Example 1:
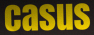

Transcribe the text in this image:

casus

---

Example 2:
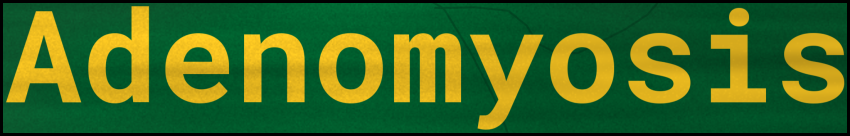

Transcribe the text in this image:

Adenomyosis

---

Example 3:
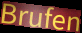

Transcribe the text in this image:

Brufen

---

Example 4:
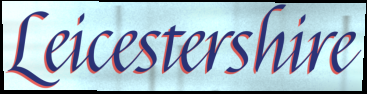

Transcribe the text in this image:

Leicestershire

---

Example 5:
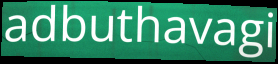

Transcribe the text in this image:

adbuthavagi